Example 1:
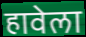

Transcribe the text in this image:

हावेला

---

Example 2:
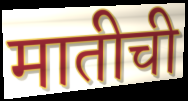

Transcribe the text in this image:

मातीची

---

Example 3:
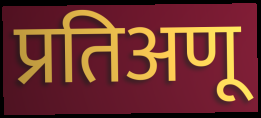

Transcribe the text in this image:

प्रतिअणू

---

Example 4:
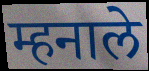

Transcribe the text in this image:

म्हनाले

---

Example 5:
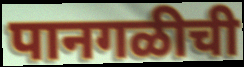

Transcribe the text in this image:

पानगळीची